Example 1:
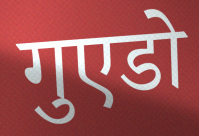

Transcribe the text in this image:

गुएडो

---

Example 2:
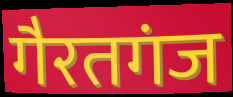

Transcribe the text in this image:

गैरतगंज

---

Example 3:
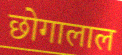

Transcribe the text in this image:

छोगालाल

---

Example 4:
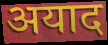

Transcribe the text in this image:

अयाद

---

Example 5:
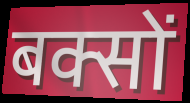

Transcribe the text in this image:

बक्सों